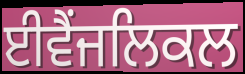
ਈਵੈਂਜਲਿਕਲ